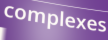
complexes